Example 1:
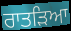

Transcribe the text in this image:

ਰਾਤੜਿਆ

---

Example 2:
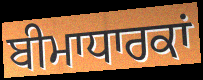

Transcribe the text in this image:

ਬੀਮਾਧਾਰਕਾਂ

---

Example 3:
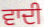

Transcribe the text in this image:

ਵਾਦੀ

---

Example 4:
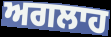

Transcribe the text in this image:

ਅਗਲਾਹ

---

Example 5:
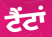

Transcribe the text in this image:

ਟੈਂਟਾਂ